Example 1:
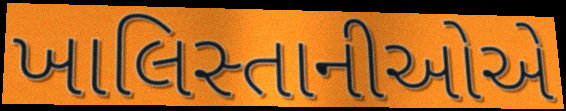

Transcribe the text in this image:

ખાલિસ્તાનીઓએ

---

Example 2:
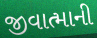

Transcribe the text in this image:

જીવાત્માની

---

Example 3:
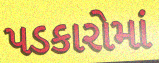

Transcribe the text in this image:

પડકારોમાં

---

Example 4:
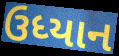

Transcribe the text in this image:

ઉધ્યાન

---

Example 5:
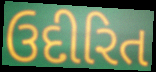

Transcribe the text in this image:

ઉદીરિત